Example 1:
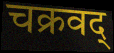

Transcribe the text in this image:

चक्रवद्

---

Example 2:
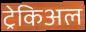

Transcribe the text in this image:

ट्रेकिअल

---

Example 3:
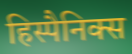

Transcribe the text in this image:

हिस्पैनिक्स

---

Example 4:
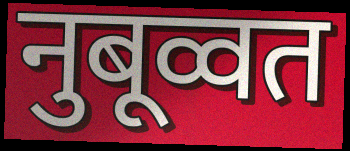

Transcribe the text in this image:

नुबूव्वत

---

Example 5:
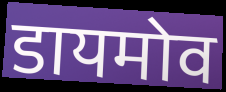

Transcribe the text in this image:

डायमोव